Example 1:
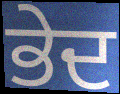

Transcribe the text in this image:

ਭੇਦ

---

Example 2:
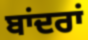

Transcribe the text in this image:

ਬਾਂਦਰਾਂ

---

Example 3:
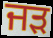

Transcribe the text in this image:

ਜੜ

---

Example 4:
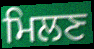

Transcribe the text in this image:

ਮਿਲਣ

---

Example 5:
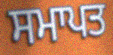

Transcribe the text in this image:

ਸਮਾਪਤ